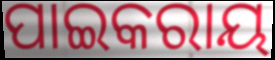
ପାଇକରାୟ